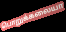
பொறுக்கலையா